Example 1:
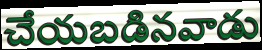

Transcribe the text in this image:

చేయబడినవాడు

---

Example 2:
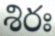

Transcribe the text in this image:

శిరః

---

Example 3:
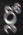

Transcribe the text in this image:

ర్లో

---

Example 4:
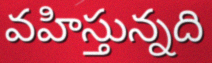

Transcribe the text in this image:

వహిస్తున్నది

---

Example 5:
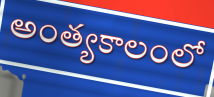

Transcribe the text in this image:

అంత్యకాలంలో